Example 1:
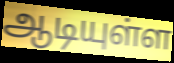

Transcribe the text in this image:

ஆடியுள்ள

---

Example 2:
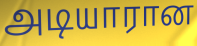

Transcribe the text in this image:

அடியாரான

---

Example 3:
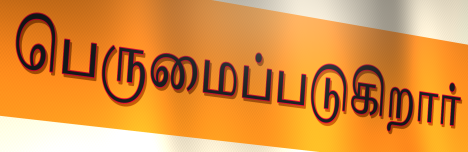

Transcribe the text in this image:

பெருமைப்படுகிறார்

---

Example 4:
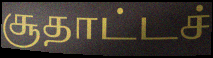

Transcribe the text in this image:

சூதாட்டச்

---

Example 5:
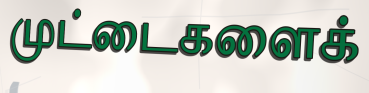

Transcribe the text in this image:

முட்டைகளைக்